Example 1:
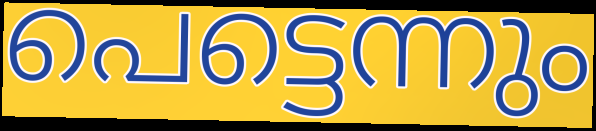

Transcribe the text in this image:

പെട്ടെന്നും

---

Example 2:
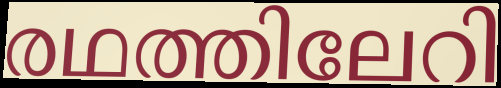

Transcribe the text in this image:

രഥത്തിലേറി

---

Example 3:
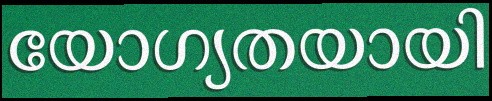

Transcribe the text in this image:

യോഗ്യതയായി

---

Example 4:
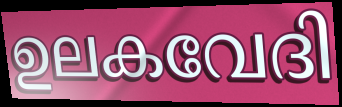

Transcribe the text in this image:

ഉലകവേദി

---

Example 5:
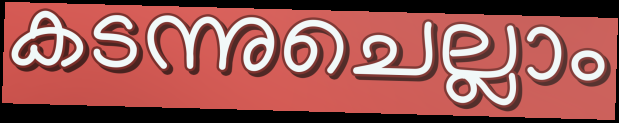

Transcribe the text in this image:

കടന്നുചെല്ലാം